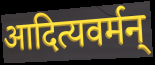
आदित्यवर्मन्